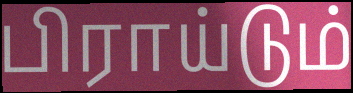
பிராய்டும்